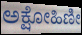
ಅಕ್ಷೋಹಿಣೀ